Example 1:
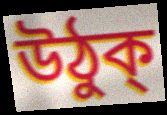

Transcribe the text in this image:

উঠুক্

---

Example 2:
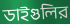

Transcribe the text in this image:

ডাইগুলির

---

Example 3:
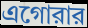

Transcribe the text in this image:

এগোরার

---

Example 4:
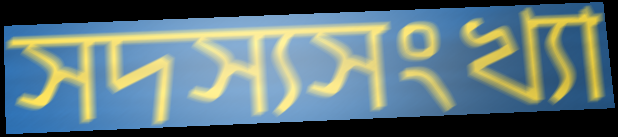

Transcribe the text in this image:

সদস্যসংখ্যা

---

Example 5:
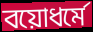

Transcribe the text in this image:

বয়োধর্মে